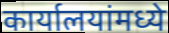
कार्यालयांमध्ये